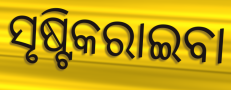
ସୃଷ୍ଟିକରାଇବା